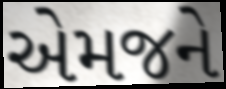
એમજને